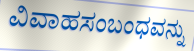
ವಿವಾಹಸಂಬಂಧವನ್ನು